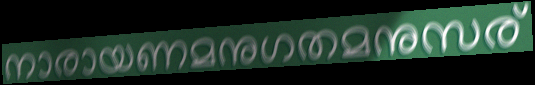
നാരായണമനുഗതമനുസര്